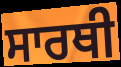
ਸਾਰਥੀ